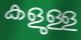
കളുള്ള